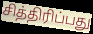
சித்திரிப்பது